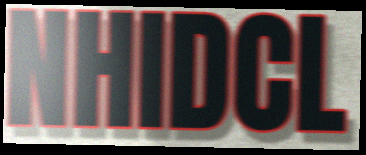
NHIDCL